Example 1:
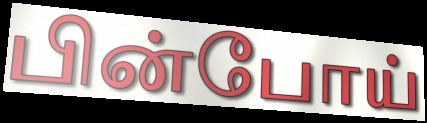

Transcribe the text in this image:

பின்போய்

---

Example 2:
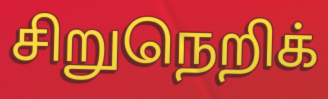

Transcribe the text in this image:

சிறுநெறிக்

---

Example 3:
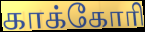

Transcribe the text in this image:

காக்கோரி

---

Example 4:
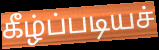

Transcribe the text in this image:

கீழ்ப்படியச்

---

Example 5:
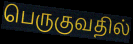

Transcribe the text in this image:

பெருகுவதில்